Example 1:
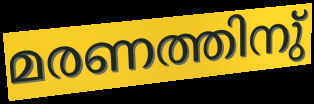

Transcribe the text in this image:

മരണത്തിനു്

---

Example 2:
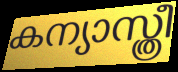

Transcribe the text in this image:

കന്യാസ്ത്രീ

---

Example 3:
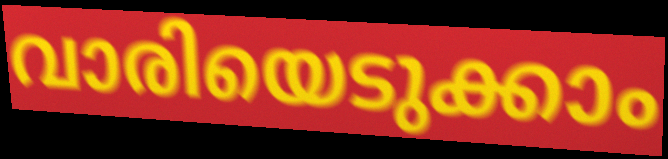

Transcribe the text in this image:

വാരിയെടുക്കാം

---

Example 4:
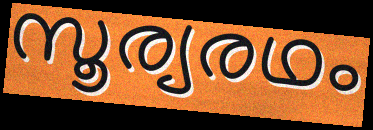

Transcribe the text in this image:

സൂര്യരഥം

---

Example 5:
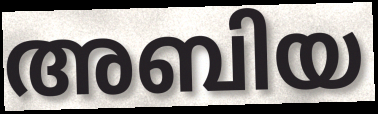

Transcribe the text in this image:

അബിയ